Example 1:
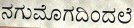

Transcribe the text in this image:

ನಗುಮೊಗದಿಂದಲೆ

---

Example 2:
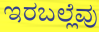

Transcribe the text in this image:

ಇರಬಲ್ಲೆವು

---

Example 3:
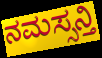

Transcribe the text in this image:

ನಮಸ್ಸನ್ತಿ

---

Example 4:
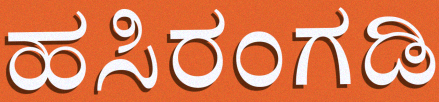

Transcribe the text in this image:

ಹಸಿರಂಗಡಿ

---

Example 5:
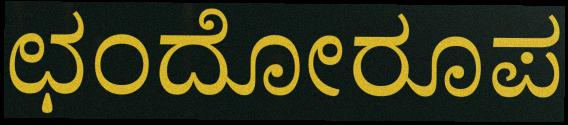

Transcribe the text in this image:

ಛಂದೋರೂಪ